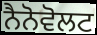
ਨੈਨੋਵੋਲਟ